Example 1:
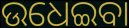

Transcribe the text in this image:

ଉଧେଇବା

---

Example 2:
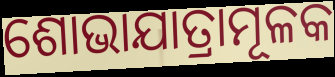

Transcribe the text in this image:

ଶୋଭାଯାତ୍ରାମୂଳକ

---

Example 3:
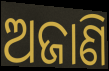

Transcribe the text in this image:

ଅଜାଣି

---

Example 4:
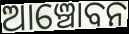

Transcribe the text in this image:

ଆଞ୍ଚୋବନ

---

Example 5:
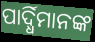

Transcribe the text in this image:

ପାର୍ଦ୍ଧିମାନଙ୍କ